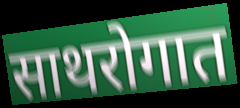
साथरोगात